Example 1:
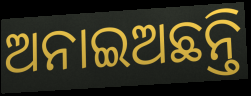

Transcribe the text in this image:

ଅନାଇଅଛନ୍ତି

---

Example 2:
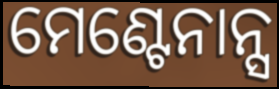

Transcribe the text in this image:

ମେଣ୍ଟେନାନ୍ସ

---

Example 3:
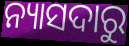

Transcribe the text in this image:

ନ୍ୟାସଦାରୁ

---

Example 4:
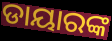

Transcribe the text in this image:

ଡାୟାରଙ୍କ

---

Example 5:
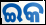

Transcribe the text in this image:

ଇକ